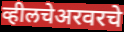
व्हीलचेअरवरचे